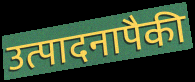
उत्पादनापैकी